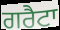
ਗਰੈਟਾ